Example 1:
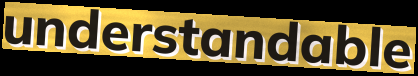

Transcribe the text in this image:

understandable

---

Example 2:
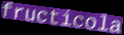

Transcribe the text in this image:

fructicola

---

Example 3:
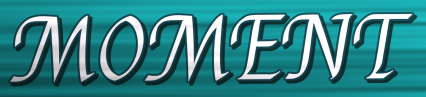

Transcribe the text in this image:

MOMENT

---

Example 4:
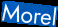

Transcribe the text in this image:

Morel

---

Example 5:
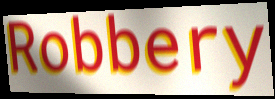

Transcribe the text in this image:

Robbery